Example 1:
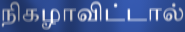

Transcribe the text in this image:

நிகழாவிட்டால்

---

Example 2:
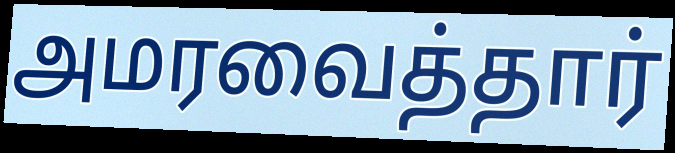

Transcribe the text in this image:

அமரவைத்தார்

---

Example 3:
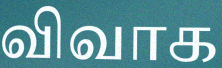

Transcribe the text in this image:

விவாக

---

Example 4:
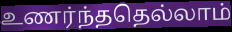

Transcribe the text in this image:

உணர்ந்ததெல்லாம்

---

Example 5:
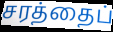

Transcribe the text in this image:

சரத்தைப்